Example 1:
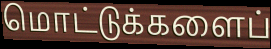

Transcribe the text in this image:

மொட்டுக்களைப்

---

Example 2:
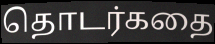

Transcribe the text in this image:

தொடர்கதை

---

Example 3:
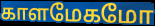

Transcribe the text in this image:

காளமேகமோ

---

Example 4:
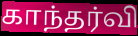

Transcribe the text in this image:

காந்தர்வி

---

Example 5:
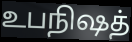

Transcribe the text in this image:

உபநிஷத்